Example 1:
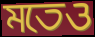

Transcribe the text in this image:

মতেও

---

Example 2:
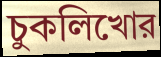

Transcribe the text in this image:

চুকলিখোর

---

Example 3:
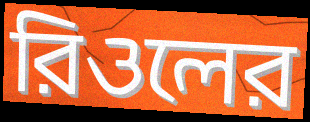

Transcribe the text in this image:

রিওলের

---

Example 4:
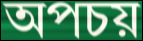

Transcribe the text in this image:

অপচয়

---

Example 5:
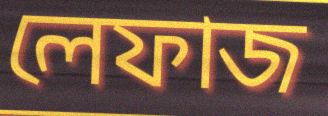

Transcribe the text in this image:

লেফাজ